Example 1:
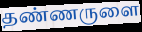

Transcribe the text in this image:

தண்ணருளை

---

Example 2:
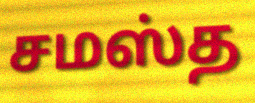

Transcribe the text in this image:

சமஸ்த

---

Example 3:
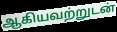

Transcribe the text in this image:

ஆகியவற்றுடன்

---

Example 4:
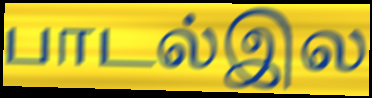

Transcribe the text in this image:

பாடல்இல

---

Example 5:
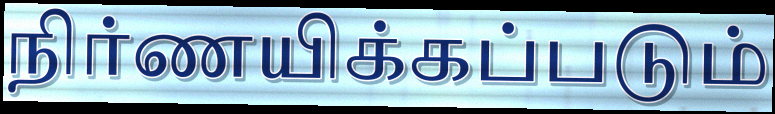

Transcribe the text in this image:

நிர்ணயிக்கப்படும்